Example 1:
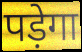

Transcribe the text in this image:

पड़ेगा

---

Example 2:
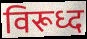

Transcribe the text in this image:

विरूध्द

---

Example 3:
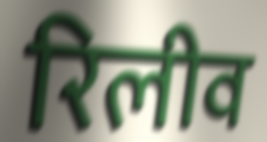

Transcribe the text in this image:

रिलीव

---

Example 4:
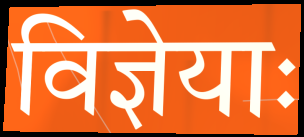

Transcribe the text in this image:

विज्ञेयाः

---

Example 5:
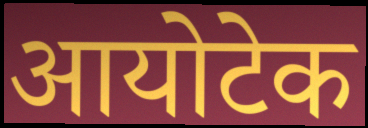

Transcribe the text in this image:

आयोटेक